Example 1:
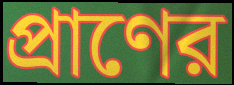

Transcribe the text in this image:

প্রাণের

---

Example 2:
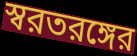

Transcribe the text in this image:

স্বরতরঙ্গের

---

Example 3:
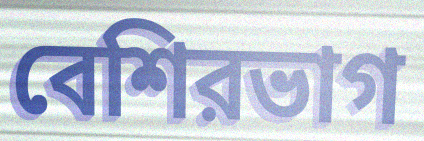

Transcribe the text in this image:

বেশিরভাগ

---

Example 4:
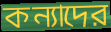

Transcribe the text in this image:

কন্যাদের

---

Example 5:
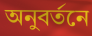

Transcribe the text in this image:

অনুবর্তনে